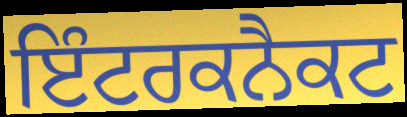
ਇੰਟਰਕਨੈਕਟ